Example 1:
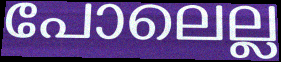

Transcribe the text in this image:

പോലെല്ല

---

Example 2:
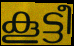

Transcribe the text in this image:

കൂട്ടീ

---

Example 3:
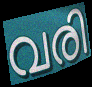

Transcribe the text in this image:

വരി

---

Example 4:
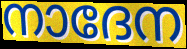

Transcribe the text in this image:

നാദേന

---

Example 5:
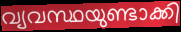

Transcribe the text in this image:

വ്യവസ്ഥയുണ്ടാക്കി